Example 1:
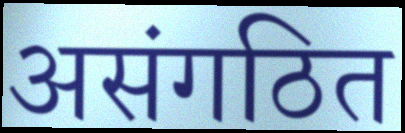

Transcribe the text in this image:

असंगठित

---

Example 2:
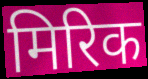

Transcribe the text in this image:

मिरिक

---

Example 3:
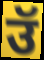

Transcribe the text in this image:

उॅ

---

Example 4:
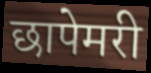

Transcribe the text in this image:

छापेमरी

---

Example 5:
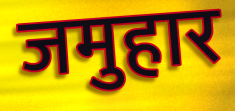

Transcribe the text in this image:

जमुहार